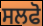
ਸਲਫੋ